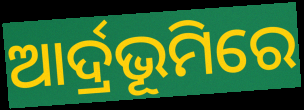
ଆର୍ଦ୍ରଭୂମିରେ